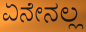
ಏನೇನಲ್ಲ